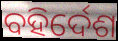
ବହିର୍ଦେଶ